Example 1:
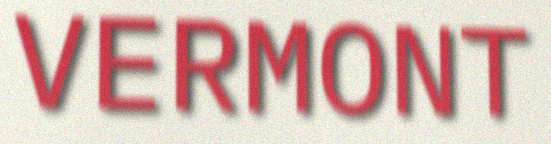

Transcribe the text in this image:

VERMONT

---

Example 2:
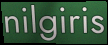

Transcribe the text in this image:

nilgiris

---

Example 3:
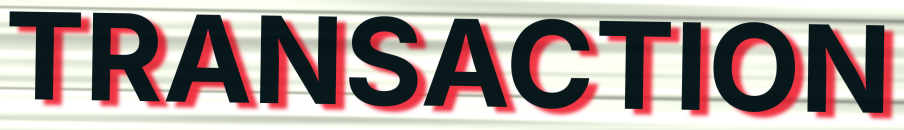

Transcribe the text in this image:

TRANSACTION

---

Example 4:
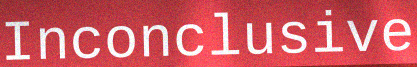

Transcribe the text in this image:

Inconclusive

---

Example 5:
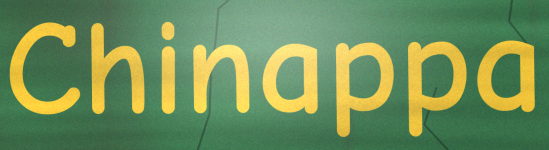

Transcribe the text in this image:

Chinappa